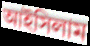
আইসিলাম